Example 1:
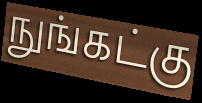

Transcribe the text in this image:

நுங்கட்கு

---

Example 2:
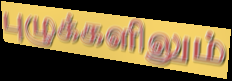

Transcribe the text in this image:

புழுக்களிலும்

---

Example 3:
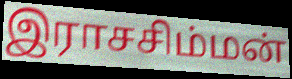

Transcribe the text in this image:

இராசசிம்மன்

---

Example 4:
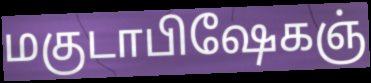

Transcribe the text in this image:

மகுடாபிஷேகஞ்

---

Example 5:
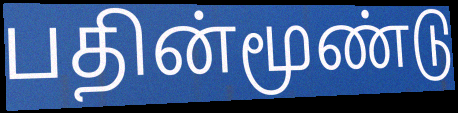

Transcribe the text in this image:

பதின்மூண்டு